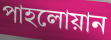
পাহলোয়ান